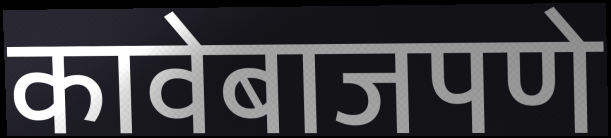
कावेबाजपणे